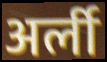
अर्ली